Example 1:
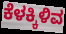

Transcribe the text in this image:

ಕೆಳಕ್ಕಿಳಿವ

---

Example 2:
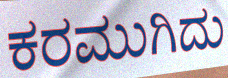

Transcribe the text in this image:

ಕರಮುಗಿದು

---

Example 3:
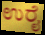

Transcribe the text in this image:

ಉರೈ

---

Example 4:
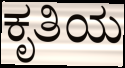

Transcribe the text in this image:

ಕೃತಿಯ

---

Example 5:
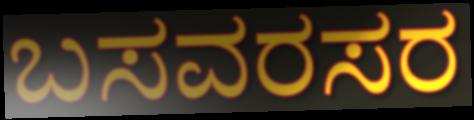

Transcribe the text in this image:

ಬಸವರಸರ